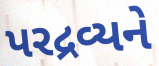
પરદ્રવ્યને